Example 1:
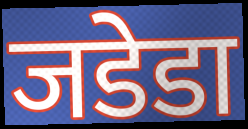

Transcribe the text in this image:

जडेडा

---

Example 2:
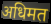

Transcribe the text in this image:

अधिमत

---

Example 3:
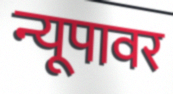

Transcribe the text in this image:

न्यूपावर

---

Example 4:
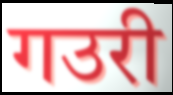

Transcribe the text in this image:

गउरी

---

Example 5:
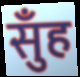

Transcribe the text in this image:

सुँह